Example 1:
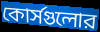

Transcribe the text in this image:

কোর্সগুলোর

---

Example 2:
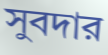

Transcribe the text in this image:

সুবদার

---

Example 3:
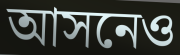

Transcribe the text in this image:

আসনেও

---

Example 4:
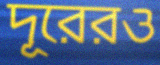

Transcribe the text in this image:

দূরেরও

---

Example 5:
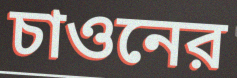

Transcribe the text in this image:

চাওনের